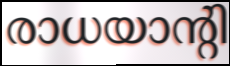
രാധയാന്റി